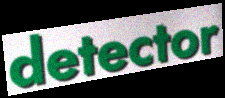
detector